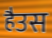
हैउस